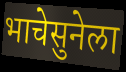
भाचेसुनेला